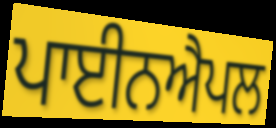
ਪਾਈਨਐਪਲ